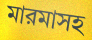
মারমাসহ